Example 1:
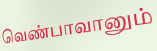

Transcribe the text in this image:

வெண்பாவானும்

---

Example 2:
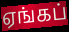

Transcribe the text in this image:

ஏங்கப்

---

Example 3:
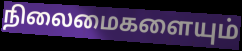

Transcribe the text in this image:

நிலைமைகளையும்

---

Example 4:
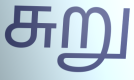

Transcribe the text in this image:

சுறு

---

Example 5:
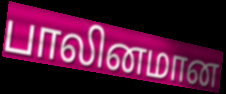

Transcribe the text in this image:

பாலினமான